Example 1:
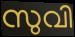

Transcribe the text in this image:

സുവി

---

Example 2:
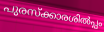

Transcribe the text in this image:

പുരസ്ക്കാരശിൽപ്പം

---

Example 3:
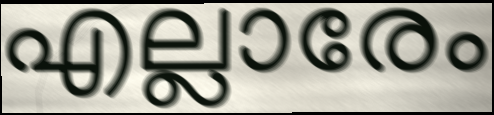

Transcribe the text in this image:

എല്ലാരേം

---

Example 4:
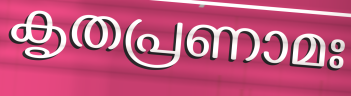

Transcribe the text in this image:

കൃതപ്രണാമഃ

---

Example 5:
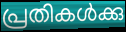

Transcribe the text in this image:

പ്രതികൾക്കു